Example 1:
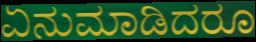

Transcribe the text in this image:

ಏನುಮಾಡಿದರೂ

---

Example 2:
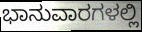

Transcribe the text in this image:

ಭಾನುವಾರಗಳಲ್ಲಿ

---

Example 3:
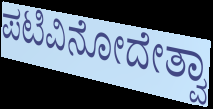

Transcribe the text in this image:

ಪಟಿವಿನೋದೇತ್ವಾ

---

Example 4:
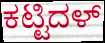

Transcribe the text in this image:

ಕಟ್ಟಿದಳ್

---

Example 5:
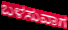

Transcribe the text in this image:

ಬಳಸುವಾಗ